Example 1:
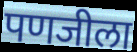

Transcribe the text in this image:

पणजीला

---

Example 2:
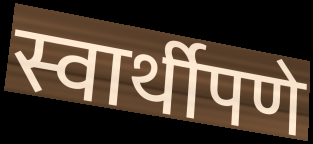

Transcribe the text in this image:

स्वार्थीपणे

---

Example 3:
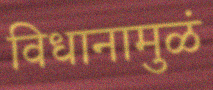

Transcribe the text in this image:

विधानामुळं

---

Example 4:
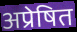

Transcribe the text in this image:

अप्रेषित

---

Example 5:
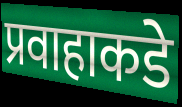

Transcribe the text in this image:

प्रवाहाकडे